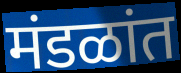
मंडळांत